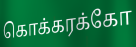
கொக்கரக்கோ